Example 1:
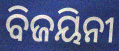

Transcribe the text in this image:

ବିଜୟିନୀ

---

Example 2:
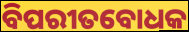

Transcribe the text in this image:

ବିପରୀତବୋଧକ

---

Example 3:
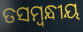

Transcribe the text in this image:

ତସମ୍ବନ୍ଧୀୟ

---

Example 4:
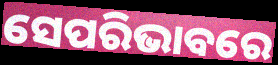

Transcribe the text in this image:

ସେପରିଭାବରେ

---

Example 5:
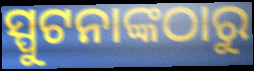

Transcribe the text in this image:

ସ୍ପୁଟନାଙ୍କଠାରୁ